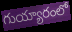
గుయ్యారంలో